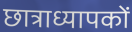
छात्राध्यापकों